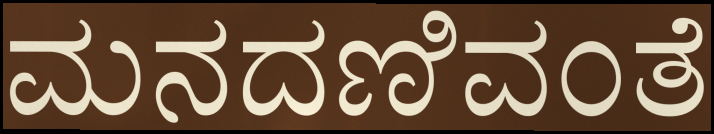
ಮನದಣಿವಂತೆ